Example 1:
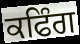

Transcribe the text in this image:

ਕਫਿੰਗ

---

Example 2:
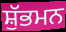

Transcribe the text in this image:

ਸ਼ੁੱਭਮਨ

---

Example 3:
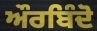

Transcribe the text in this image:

ਔਰਬਿੰਦੋ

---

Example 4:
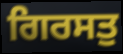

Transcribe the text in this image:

ਗਿਰਸਤੁ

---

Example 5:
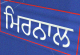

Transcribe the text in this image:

ਮਿਰਨਾਲ